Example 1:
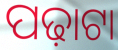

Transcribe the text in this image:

ପଢ଼ାଟା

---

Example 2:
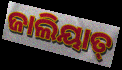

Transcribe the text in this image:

ଜାଲିୟାତ୍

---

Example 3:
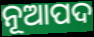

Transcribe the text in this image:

ନୂଆପଦ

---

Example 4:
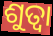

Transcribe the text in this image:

ଶୁତ୍ବା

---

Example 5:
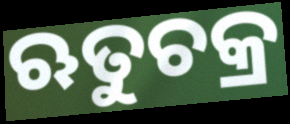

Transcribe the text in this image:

ଋତୁଚକ୍ର